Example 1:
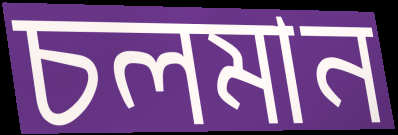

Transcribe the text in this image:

চলমান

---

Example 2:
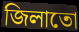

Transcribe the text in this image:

জিলাতো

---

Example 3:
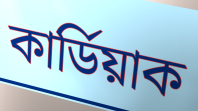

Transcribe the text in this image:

কাৰ্ডিয়াক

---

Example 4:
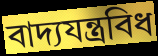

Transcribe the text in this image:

বাদ্যযন্ত্ৰবিধ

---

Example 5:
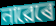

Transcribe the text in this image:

নাৱেৰে